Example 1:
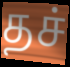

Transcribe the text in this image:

தச்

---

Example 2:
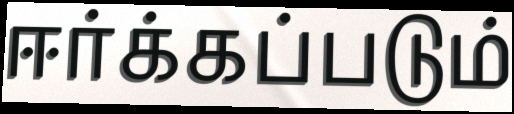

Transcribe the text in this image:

ஈர்க்கப்படும்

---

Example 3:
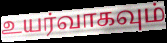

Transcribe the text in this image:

உயர்வாகவும்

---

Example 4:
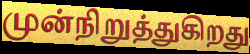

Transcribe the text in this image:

முன்நிறுத்துகிறது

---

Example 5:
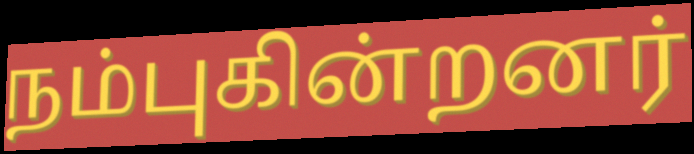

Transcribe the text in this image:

நம்புகின்றனர்